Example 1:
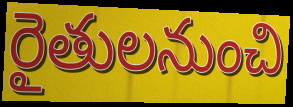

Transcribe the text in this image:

రైతులనుంచి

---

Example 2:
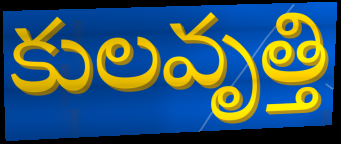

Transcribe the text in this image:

కులవృత్తి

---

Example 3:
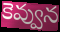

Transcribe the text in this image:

కెవ్వున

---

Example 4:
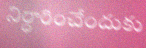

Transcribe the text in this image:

నిర్ధారించేందుకు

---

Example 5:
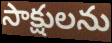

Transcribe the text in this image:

సాక్షులను